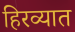
हिरव्यात